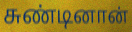
சுண்டினான்